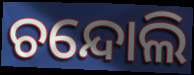
ଚନ୍ଦୋଲି